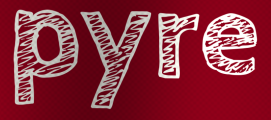
pyre